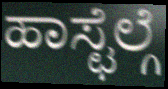
ಹಾಸ್ಟೆಲ್ಗೆ